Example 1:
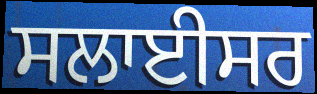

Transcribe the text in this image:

ਸਲਾਈਸਰ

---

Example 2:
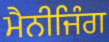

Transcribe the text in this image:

ਮੈਨੀਜਿੰਗ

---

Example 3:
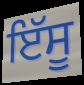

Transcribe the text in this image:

ਇੱਸੂ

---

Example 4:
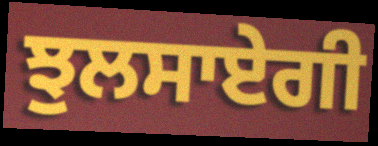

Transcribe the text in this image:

ਝੁਲਸਾਏਗੀ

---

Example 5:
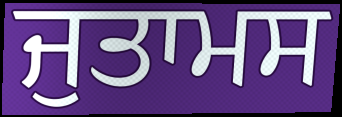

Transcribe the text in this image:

ਜੁਤਾਮਸ